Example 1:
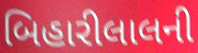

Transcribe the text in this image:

બિહારીલાલની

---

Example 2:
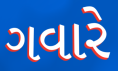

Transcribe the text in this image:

ગવારે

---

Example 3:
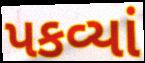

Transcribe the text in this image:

પકવ્યાં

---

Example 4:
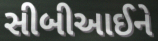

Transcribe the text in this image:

સીબીઆઈને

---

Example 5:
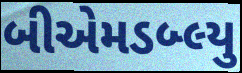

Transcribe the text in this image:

બીએમડબ્લ્યુ